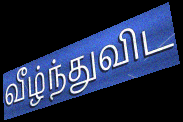
வீழ்ந்துவிட